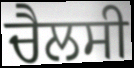
ਚੈਲਸੀ